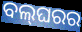
ବଲ୍‌ଘରର